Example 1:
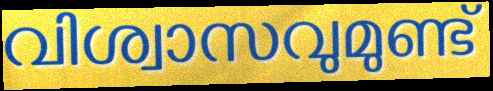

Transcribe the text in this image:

വിശ്വാസവുമുണ്ട്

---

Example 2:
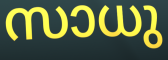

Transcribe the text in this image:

സാധു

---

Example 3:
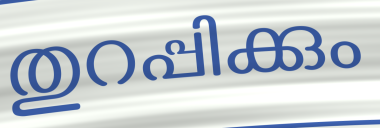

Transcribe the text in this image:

തുറപ്പിക്കും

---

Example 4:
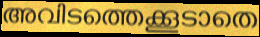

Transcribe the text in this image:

അവിടത്തെക്കൂടാതെ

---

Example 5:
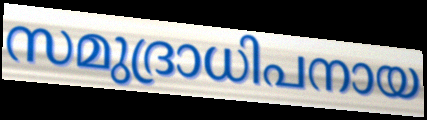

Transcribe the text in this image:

സമുദ്രാധിപനായ